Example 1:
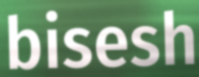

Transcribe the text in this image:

bisesh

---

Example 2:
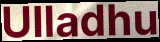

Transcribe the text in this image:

Ulladhu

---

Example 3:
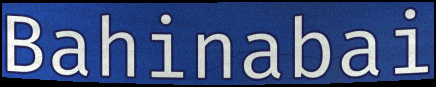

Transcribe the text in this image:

Bahinabai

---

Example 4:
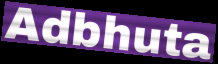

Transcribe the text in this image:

Adbhuta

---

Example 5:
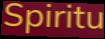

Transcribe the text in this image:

Spiritu